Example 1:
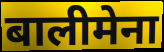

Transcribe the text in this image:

बालीमेना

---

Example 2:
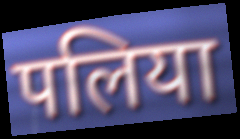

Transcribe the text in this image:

पलिया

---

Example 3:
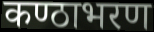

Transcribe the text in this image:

कण्ठाभरण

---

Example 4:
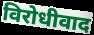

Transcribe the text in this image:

विरोधीवाद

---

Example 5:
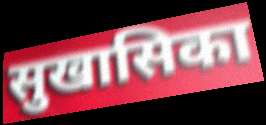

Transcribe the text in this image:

सुखासिका